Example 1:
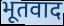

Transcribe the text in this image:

भूतवाद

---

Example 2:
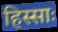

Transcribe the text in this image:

हिस्साः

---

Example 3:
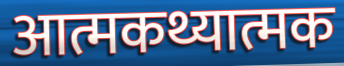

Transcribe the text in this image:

आत्मकथ्यात्मक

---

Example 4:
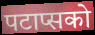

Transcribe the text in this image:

पटाप्सको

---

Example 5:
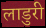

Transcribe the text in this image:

लाडुरी